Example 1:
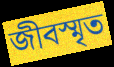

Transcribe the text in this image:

জীবস্মৃত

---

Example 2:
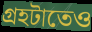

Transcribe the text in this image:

গ্রহটাতেও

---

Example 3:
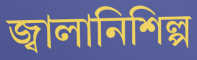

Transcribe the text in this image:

জ্বালানিশিল্প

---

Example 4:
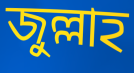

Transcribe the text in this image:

জুল্লাহ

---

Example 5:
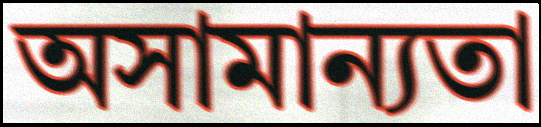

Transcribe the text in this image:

অসামান্যতা